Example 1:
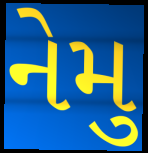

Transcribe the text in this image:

નેમુ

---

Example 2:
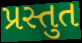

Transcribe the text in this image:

પ્રસ્તુત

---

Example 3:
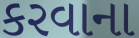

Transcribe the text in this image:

કરવાના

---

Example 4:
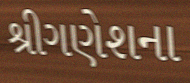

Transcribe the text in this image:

શ્રીગણેશના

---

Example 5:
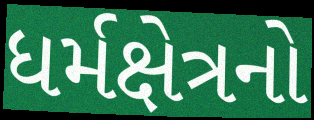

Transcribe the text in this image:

ધર્મક્ષેત્રનો